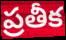
ప్రతీక